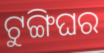
ଟୁଙ୍ଗିଘର